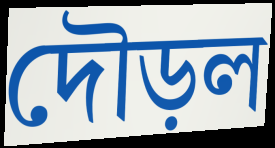
দৌড়ল